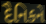
દૈનિકને